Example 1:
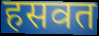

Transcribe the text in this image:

हसवत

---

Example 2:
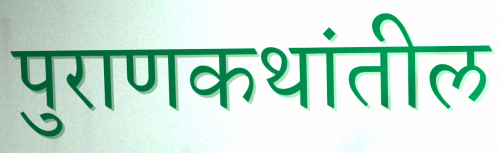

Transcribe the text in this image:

पुराणकथांतील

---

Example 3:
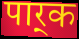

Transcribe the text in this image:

पार्क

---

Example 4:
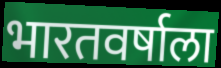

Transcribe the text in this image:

भारतवर्षाला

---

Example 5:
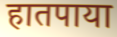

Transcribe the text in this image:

हातपाया